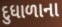
દુધાળાના